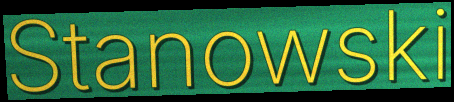
Stanowski